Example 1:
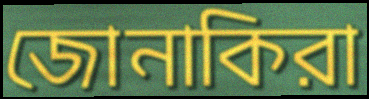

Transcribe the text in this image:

জোনাকিরা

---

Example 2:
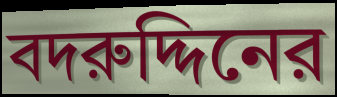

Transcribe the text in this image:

বদরুদ্দিনের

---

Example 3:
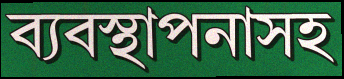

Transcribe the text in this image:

ব্যবস্থাপনাসহ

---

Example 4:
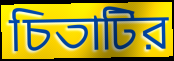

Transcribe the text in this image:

চিতাটির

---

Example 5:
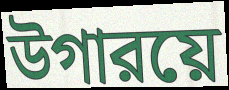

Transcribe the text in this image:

উগারয়ে